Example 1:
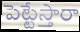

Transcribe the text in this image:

పెట్టేస్తారా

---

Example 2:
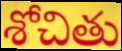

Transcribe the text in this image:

శోచితు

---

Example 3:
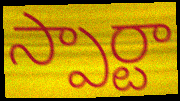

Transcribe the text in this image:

స్పార్టా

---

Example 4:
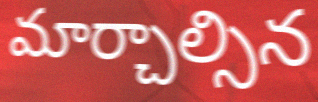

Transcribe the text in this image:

మార్చాల్సిన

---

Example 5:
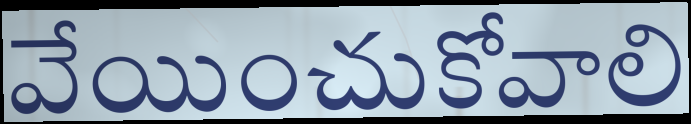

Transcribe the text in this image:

వేయించుకోవాలి